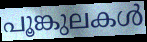
പൂങ്കുലകൾ